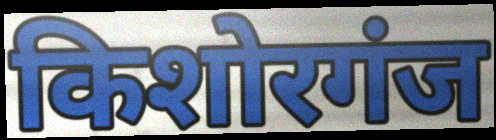
किशोरगंज